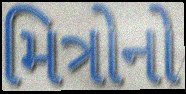
મિત્રોનો